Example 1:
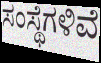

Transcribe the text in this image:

ಸಂಸ್ಥೆಗಳಿವೆ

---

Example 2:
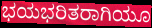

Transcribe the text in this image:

ಭಯಭರಿತರಾಗಿಯೂ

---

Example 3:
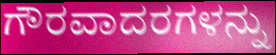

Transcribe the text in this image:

ಗೌರವಾದರಗಳನ್ನು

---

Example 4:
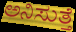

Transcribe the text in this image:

ಅನಿಸುತ್ತೆ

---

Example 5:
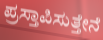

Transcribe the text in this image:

ಪ್ರಸ್ತಾಪಿಸುತ್ತೇನೆ